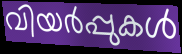
വിയർപ്പുകൾ